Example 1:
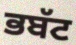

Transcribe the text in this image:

ਭਬੱਟ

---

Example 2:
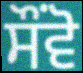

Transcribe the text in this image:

ਸੌਂਵੋ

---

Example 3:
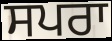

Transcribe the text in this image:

ਸਪਰਾ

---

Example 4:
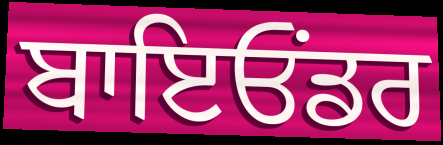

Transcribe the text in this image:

ਬਾਇਓਂਡਰ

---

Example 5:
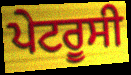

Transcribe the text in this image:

ਪੇਟਰੂਸੀ